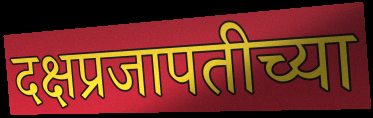
दक्षप्रजापतीच्या